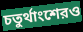
চতুর্থাংশেরও